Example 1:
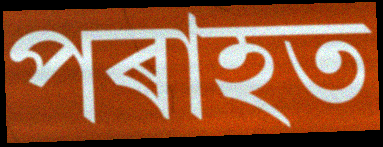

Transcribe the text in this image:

পৰাহত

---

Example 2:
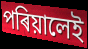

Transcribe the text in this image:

পৰিয়ালেই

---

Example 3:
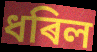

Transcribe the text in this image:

ধৰিল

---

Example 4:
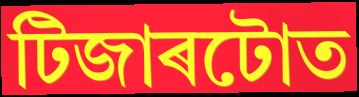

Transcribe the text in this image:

টিজাৰটোত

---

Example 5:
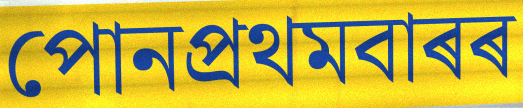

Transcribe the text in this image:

পোনপ্ৰথমবাৰৰ